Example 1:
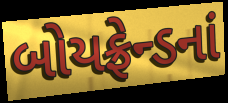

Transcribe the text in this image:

બોયફ્રેન્ડનાં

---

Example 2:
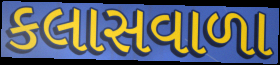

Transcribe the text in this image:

કલાસવાળા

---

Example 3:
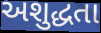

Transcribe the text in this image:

અશુદ્ધતા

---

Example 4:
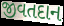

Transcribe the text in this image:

જીવતદાન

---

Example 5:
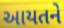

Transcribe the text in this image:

આયતને